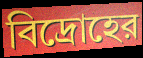
বিদ্রোহের